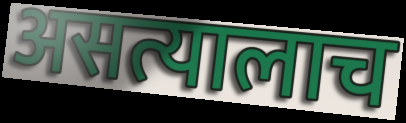
असत्यालाच